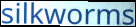
silkworms